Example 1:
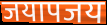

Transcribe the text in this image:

जयापजय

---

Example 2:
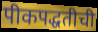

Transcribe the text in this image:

पीकपद्धतीची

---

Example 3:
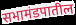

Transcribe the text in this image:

सभामंडपातील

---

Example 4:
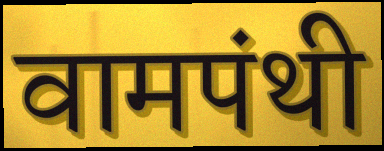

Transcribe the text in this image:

वामपंथी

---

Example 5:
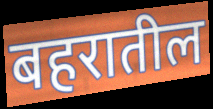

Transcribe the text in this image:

बहरातील